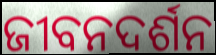
ଜୀବନଦର୍ଶନ